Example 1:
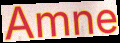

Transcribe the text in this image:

Amne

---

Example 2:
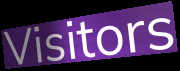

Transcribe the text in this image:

Visitors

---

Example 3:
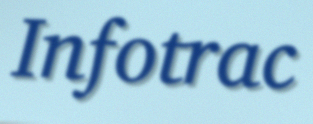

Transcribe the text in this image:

Infotrac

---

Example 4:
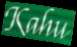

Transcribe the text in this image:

Kahu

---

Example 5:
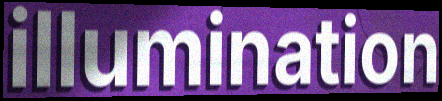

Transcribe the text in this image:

illumination